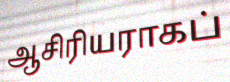
ஆசிரியராகப்